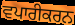
ਵਪਾਰੀਕਰਨ